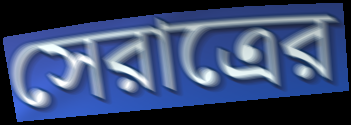
সেরাত্রের